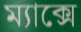
ম্যাক্সে